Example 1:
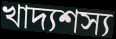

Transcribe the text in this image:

খাদ্যশস্য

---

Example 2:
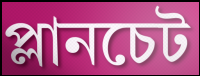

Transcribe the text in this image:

প্লানচেট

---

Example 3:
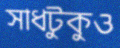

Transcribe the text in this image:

সাধটুকুও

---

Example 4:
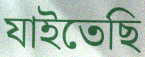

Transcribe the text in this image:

যাইতেছি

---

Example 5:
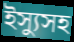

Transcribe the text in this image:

ইস্যুসহ